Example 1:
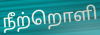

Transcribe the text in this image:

நீற்றொளி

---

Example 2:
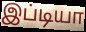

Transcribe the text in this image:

இப்டியா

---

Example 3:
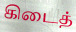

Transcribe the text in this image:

கிடைத்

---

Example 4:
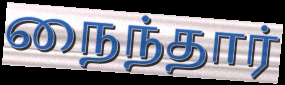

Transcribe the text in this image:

நைந்தார்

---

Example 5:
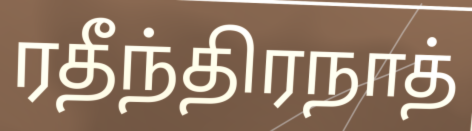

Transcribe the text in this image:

ரதீந்திரநாத்